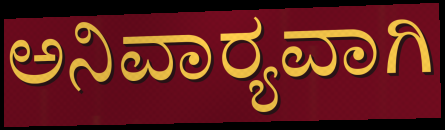
ಅನಿವಾರ‍್ಯವಾಗಿ